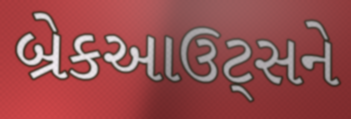
બ્રેકઆઉટ્સને